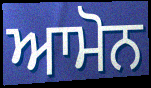
ਆਮੋਨ